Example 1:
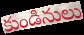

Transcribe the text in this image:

కుండినులు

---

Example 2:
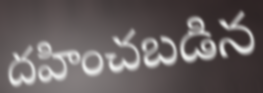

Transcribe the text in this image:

దహించబడిన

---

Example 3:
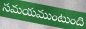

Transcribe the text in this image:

సమయముంటుంది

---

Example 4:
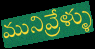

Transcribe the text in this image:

మునివ్రేళ్ళు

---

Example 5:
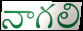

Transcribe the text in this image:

నాగలి